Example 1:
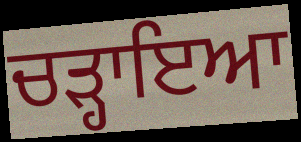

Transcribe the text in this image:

ਚੜ੍ਹਾਇਆ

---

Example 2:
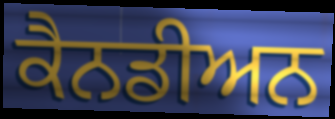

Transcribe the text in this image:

ਕੈਨਡੀਅਨ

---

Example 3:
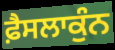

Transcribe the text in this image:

ਫ਼ੈਸਲਾਕੁੰਨ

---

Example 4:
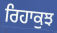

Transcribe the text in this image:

ਰਿਹਾਕੁਝ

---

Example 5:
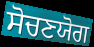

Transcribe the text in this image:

ਸੋਚਣਯੋਗ